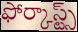
ఫోర్కాస్ట్స్